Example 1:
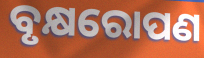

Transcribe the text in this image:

ବୃକ୍ଷରୋପଣ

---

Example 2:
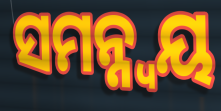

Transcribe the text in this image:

ସମନ୍ନ୍ୱୟ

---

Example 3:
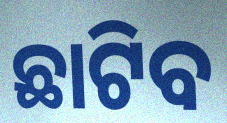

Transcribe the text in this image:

ଛାଟିବ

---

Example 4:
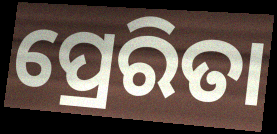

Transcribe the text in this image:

ପ୍ରେରିତା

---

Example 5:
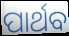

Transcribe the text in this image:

ପାର୍ଥବ